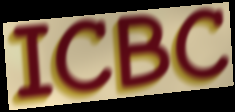
ICBC